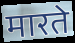
मारते